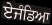
ਏਜੰਡਿਆ